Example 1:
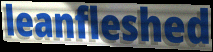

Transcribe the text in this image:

leanfleshed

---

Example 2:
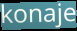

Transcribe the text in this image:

konaje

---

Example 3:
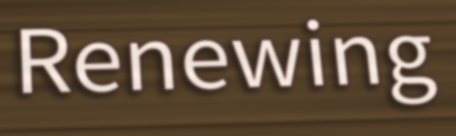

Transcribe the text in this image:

Renewing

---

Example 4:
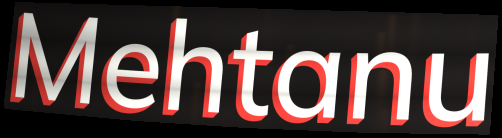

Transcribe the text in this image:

Mehtanu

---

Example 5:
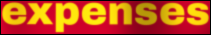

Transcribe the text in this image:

expenses